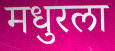
मधुरला